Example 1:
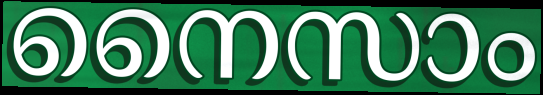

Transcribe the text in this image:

നൈസാം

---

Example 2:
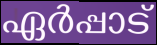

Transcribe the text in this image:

ഏർപ്പാട്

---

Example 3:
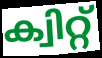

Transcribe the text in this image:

ക്വിറ്റ്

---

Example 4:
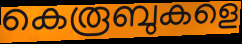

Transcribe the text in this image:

കെരൂബുകളെ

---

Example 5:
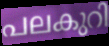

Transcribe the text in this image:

പലകുറി